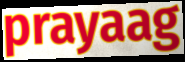
prayaag